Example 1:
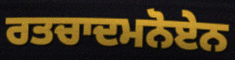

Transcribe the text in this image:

ਰਤਚਾਦਮਨੋਏਨ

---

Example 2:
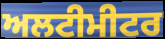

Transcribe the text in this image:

ਅਲਟੀਮੀਟਰ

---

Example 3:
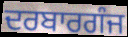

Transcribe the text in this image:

ਦਰਬਾਰਗੰਜ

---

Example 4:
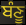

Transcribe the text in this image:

ਬੰਣੂ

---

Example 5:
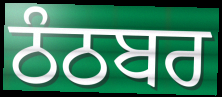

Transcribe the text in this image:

ਠੰਠਬਰ